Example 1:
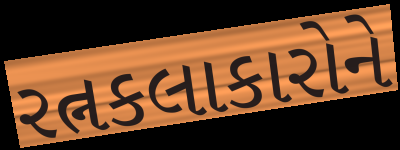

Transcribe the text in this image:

રત્નકલાકારોને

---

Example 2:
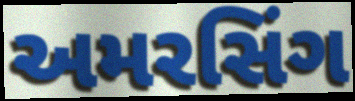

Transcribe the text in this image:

અમરસિંગ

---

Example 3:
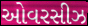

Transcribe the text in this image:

ઓવરસીઝ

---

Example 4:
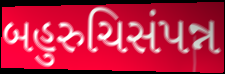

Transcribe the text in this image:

બહુરુચિસંપન્ન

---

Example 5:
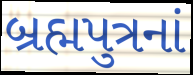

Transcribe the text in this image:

બ્રહ્મપુત્રનાં